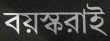
বয়স্করাই